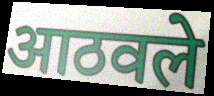
आठवले